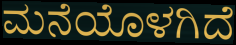
ಮನೆಯೊಳಗಿದೆ